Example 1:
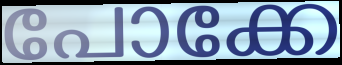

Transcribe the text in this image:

പോക്കേ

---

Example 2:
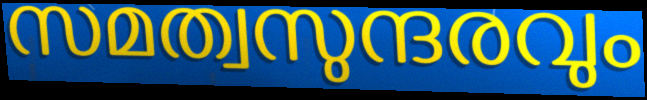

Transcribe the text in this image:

സമത്വസുന്ദരവും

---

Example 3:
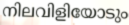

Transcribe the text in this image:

നിലവിളിയോടും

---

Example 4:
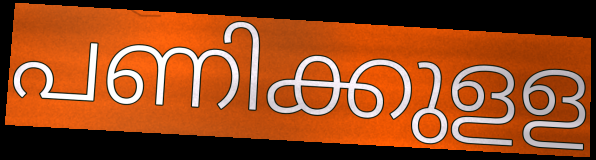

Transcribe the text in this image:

പണിക്കുളള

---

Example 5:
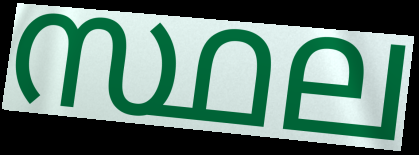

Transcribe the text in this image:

സ്ഥല